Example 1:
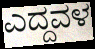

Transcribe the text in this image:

ಎದ್ದವಳ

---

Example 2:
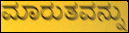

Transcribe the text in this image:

ಮಾರುತವನ್ನು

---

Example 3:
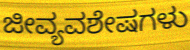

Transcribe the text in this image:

ಜೀವ್ಯವಶೇಷಗಳು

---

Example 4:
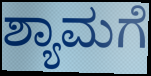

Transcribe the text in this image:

ಶ್ಯಾಮಗೆ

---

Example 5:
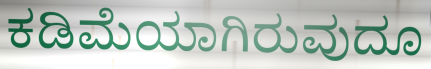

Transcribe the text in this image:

ಕಡಿಮೆಯಾಗಿರುವುದೂ